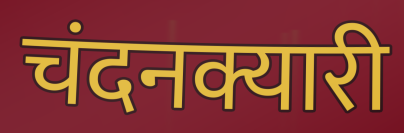
चंदनक्यारी